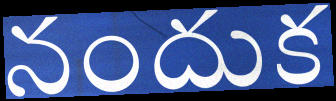
నందుక